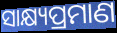
ସାକ୍ଷ୍ୟପ୍ରମାଣ